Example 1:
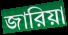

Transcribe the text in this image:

জারিয়া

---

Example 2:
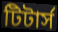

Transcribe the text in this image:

টিটার্স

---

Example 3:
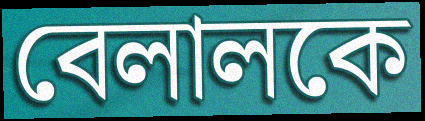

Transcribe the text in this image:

বেলালকে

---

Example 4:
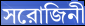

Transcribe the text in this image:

সরোজিনী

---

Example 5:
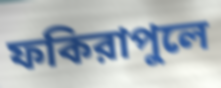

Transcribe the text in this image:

ফকিরাপুলে